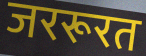
जररूरत